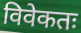
विवेकतः